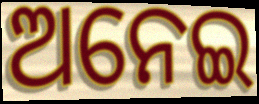
ଅନେଇ